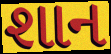
શાન